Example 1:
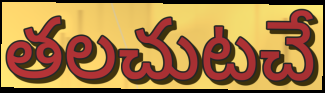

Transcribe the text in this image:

తలచుటచే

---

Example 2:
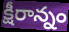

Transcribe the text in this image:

క్షీరాన్నం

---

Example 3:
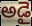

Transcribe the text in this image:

అడై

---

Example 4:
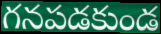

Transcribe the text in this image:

గనపడకుండ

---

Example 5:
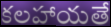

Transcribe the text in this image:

కలహాయతే